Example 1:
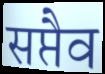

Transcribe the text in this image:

सप्तैव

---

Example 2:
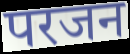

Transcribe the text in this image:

परजन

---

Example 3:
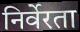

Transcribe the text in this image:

निर्वेरता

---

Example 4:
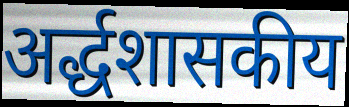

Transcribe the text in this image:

अर्द्धशासकीय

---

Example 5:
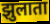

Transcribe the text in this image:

झुलाता